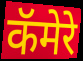
कॅमेरे